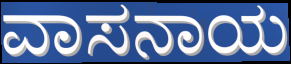
ವಾಸನಾಯ